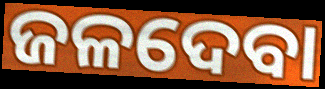
ଜଳଦେବା